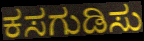
ಕಸಗುಡಿಸು